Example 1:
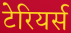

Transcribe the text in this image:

टेरियर्स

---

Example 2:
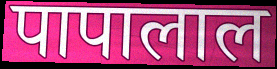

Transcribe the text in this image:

पापालाल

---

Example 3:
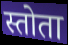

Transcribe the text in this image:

स्तोता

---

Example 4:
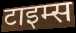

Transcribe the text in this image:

टाइम्‍स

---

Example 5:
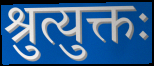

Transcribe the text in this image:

श्रुत्युक्तः